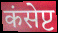
कंसेप्ट